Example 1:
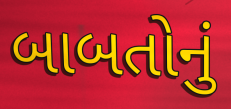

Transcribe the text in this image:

બાબતોનું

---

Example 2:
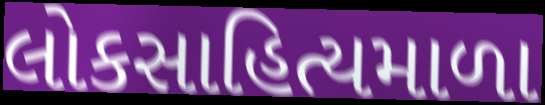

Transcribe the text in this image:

લોકસાહિત્યમાળા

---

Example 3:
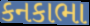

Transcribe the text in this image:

કનકાભા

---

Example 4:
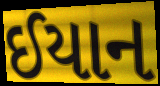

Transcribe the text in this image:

ઈયાન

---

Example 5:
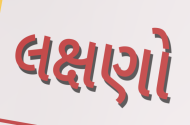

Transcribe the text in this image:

લક્ષણો